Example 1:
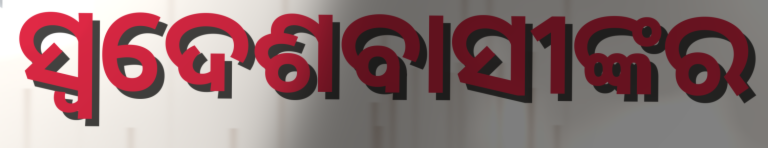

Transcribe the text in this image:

ସ୍ୱଦେଶବାସୀଙ୍କର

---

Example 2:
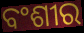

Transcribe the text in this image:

ବଂଶୀର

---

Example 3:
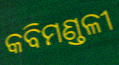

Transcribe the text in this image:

କବିମଣ୍ଡଳୀ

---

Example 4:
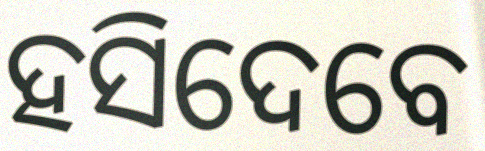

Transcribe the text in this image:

ହସିଦେବେ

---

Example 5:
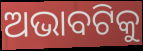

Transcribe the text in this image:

ଅଭାବଟିକୁ